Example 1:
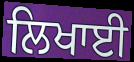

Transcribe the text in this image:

ਲਿਖਾਈ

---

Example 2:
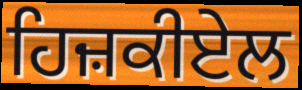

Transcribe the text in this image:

ਹਿਜ਼ਕੀਏਲ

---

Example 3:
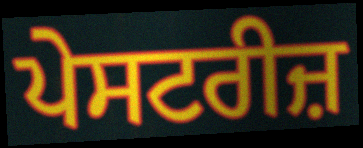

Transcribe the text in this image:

ਪੇਸਟਰੀਜ਼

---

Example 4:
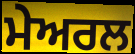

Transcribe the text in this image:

ਮੇਅਰਲ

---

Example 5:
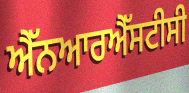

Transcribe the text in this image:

ਐੱਨਆਰਐੱਸਟੀਸੀ